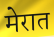
मेरात